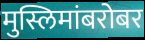
मुस्लिमांबरोबर